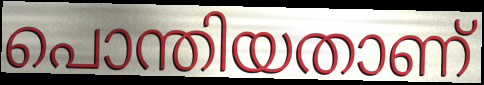
പൊന്തിയതാണ്